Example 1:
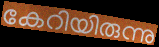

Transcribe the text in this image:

കേറിയിരുന്നു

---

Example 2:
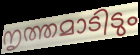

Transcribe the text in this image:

നൃത്തമാടിടും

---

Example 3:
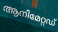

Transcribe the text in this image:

ആനിമേറ്റഡ്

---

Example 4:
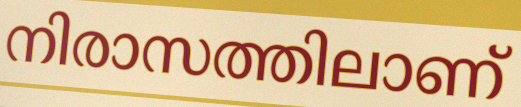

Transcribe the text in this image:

നിരാസത്തിലാണ്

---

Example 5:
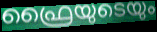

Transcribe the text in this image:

ഫ്രൈയുടെയും